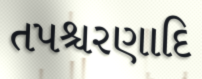
તપશ્ચરણાદિ